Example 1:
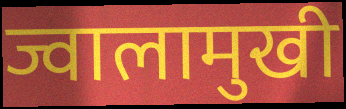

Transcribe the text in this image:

ज्‍वालामुखी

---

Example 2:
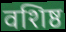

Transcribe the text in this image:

वशिष्ठ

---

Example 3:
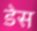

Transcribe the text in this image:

डेस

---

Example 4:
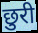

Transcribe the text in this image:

छुरी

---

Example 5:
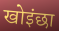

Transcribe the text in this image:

खोइंछा